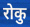
रोकु